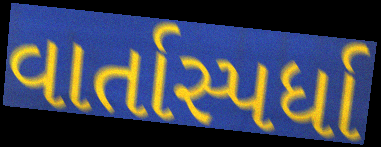
વાર્તાસ્પર્ધા